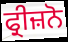
ਫ੍ਰੀਜ਼ਨੋ